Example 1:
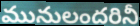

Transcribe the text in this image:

మునులందరినీ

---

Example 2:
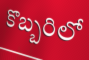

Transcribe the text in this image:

కొబ్బరిలో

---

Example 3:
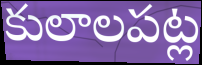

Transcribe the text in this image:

కులాలపట్ల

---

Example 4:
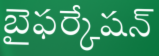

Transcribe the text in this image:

బైఫర్కేషన్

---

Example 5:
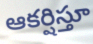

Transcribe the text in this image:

ఆకర్షిస్తూ